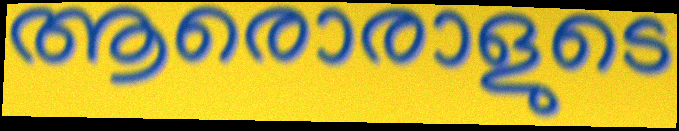
ആരൊരാളുടെ